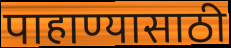
पाहाण्यासाठी